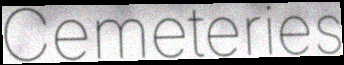
Cemeteries